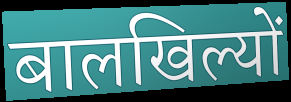
बालखिल्यों